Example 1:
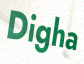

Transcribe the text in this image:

Digha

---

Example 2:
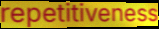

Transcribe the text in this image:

repetitiveness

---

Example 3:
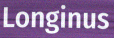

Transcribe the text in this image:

Longinus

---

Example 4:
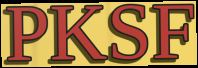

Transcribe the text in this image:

PKSF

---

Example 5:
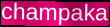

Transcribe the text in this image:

champaka